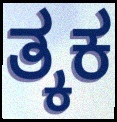
ತ್ಕಕ